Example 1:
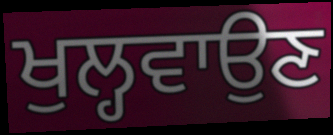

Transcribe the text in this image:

ਖੁਲ੍ਹਵਾਉਣ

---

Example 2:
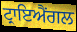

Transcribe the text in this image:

ਟ੍ਰਾਇਐਂਗਲ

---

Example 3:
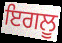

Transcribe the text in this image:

ਇਗਲੂ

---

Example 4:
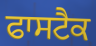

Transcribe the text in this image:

ਫਾਸਟੈਕ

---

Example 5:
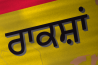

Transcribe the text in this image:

ਰਾਕਸ਼ਾਂ